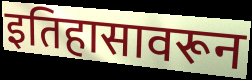
इतिहासावरून